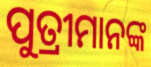
ପୁତ୍ରୀମାନଙ୍କ